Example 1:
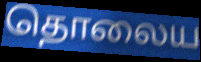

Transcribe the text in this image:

தொலைய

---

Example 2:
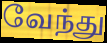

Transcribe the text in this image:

வேந்து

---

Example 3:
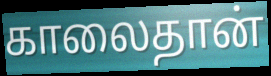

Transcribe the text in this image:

காலைதான்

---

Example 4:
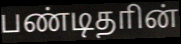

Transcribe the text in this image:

பண்டிதரின்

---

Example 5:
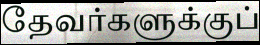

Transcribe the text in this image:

தேவர்களுக்குப்